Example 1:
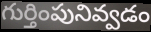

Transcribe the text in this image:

గుర్తింపునివ్వడం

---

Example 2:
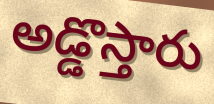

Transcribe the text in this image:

అడ్డొస్తారు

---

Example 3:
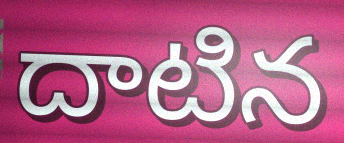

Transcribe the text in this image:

దాటిన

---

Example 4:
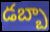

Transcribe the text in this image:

డబ్బా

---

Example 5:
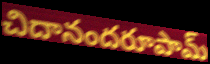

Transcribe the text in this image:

చిదానందరూపామ్